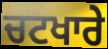
ਚਟਖਾਰੇ